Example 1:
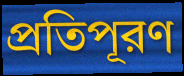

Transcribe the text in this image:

প্রতিপূরণ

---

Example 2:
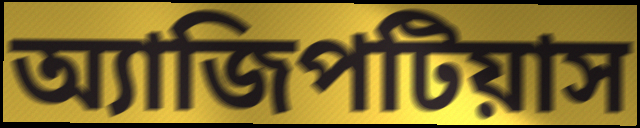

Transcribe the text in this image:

অ্যাজিপটিয়াস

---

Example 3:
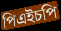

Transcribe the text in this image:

পিএইচপি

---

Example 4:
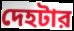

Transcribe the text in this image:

দেহটার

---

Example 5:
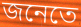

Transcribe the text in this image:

জনেতে